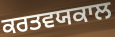
ਕਰਤਵਯਕਾਲ